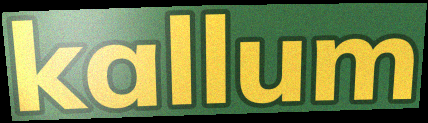
kallum